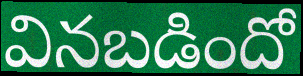
వినబడిందో